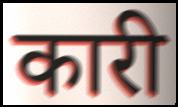
कारी